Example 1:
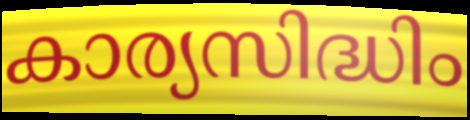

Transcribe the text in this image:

കാര്യസിദ്ധിം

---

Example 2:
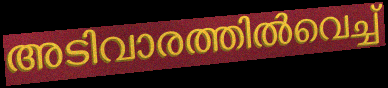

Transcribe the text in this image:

അടിവാരത്തിൽവെച്ച്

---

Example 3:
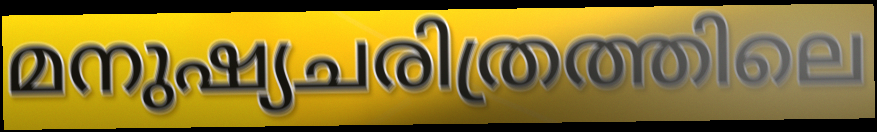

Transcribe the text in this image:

മനുഷ്യചരിത്രത്തിലെ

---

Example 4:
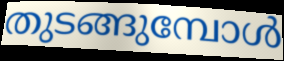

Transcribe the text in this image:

തുടങ്ങുമ്പോൾ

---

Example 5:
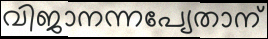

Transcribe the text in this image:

വിജാനന്നപ്യേതാന്